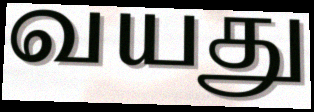
வயது